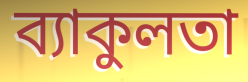
ব্যাকুলতা